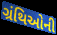
ગ્રંથિઓની